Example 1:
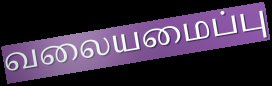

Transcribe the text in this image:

வலையமைப்பு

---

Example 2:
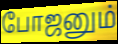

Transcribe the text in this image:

போஜனும்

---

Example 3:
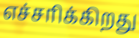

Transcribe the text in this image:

எச்சரிக்கிறது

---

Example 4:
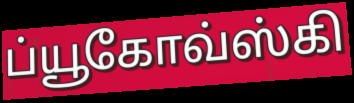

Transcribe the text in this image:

ப்யூகோவ்ஸ்கி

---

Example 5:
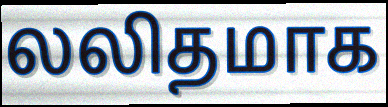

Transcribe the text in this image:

லலிதமாக